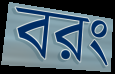
বরং